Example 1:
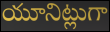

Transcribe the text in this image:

యూనిట్లుగా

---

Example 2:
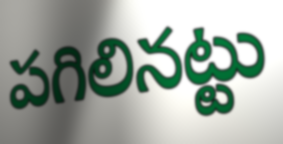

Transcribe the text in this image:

పగిలినట్టు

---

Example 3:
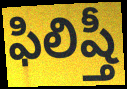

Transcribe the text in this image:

ఫిలిష్తీ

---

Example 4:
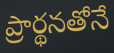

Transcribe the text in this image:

ప్రార్థనతోనే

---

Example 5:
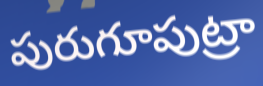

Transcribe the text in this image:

పురుగూపుట్రా